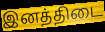
இனத்திடை